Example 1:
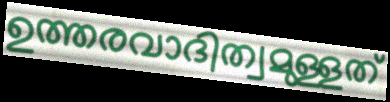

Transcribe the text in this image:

ഉത്തരവാദിത്വമുള്ളത്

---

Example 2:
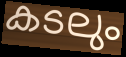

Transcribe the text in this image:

കടലും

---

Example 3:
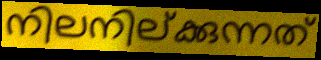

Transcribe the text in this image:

നിലനില്ക്കുന്നത്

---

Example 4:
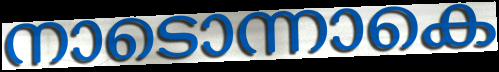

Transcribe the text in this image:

നാടൊന്നാകെ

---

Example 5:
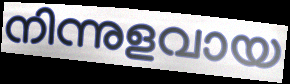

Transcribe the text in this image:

നിന്നുളവായ